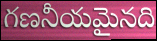
గణనీయమైనది